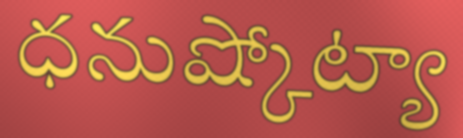
ధనుష్కోట్యా